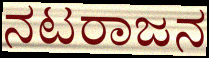
ನಟರಾಜನ